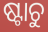
ଷ୍ଟାଚୁ